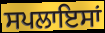
ਸਪਲਾਇਸਾਂ